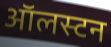
ऑलस्टन